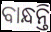
ବାନ୍ଧନ୍ତି